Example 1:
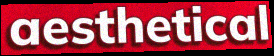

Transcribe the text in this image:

aesthetical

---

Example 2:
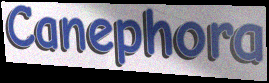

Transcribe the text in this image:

Canephora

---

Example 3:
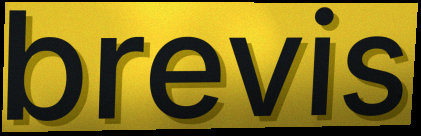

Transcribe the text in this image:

brevis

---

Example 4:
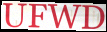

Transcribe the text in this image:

UFWD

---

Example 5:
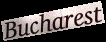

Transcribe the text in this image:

Bucharest